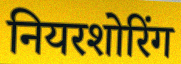
नियरशोरिंग